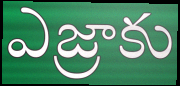
ఎజ్రాకు